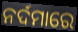
ନର୍ଦମାରେ